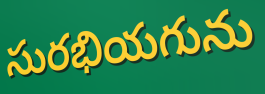
సురభియగును